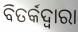
ବିତର୍କଦ୍ୱାରା